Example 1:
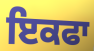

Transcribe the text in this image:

ਇਕਫਾ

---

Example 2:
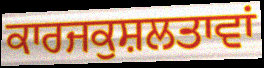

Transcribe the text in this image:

ਕਾਰਜਕੁਸ਼ਲਤਾਵਾਂ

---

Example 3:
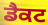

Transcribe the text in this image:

ਡੈਕਟ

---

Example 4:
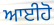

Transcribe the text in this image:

ਆਈਹੋ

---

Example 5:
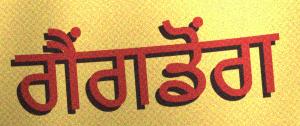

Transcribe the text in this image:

ਗੈਂਗਡੋਂਗ